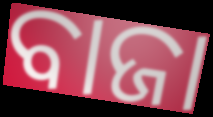
ବାଜା